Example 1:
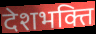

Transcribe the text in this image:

देशभक्ति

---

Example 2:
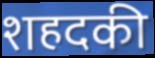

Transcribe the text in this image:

शहदकी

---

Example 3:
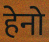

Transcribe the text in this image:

हेनो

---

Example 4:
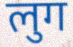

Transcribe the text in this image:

लुग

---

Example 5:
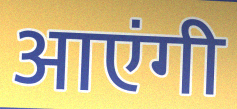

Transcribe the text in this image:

आएंगी